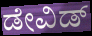
ಡೇವಿಡ್